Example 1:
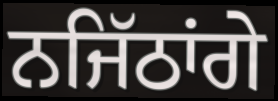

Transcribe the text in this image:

ਨਜਿੱਠਾਂਗੇ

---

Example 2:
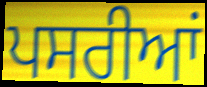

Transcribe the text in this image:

ਪਸਰੀਆਂ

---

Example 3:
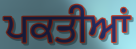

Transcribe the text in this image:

ਪਕਤੀਆਂ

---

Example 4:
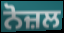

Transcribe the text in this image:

ਨੋਜ਼ਲ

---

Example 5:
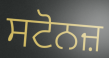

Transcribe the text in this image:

ਸਟੋਨਜ਼